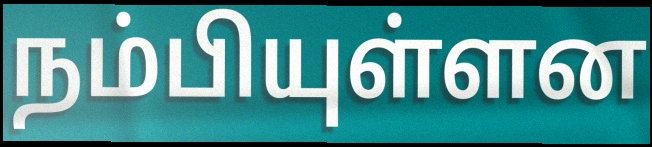
நம்பியுள்ளன